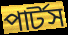
পার্টস